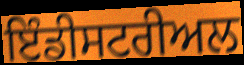
ਇੰਡੀਸਟਰੀਅਲ